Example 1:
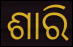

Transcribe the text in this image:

ଶାରି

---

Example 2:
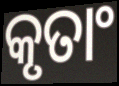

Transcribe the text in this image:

କୃତାଂ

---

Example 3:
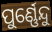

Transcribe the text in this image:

ପୁର୍ଣ୍ଣେନ୍ଦୁ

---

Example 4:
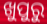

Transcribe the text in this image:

ଖୁପୁରୁ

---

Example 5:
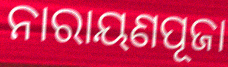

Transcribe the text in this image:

ନାରାୟଣପୂଜା